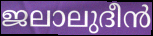
ജലാലുദീൻ